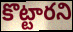
కొట్టారని